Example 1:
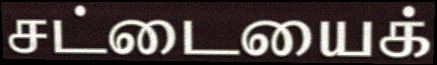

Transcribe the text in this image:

சட்டையைக்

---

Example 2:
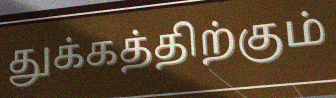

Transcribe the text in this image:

துக்கத்திற்கும்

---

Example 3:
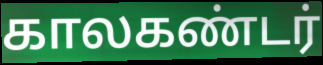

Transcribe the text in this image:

காலகண்டர்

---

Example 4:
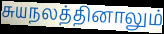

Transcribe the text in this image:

சுயநலத்தினாலும்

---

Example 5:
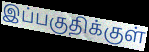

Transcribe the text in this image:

இப்பகுதிக்குள்